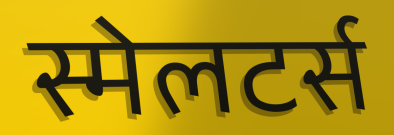
स्मेलटर्स